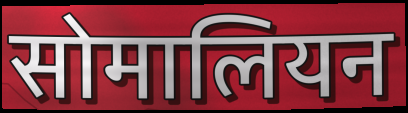
सोमालियन